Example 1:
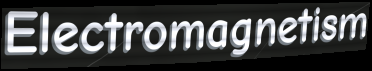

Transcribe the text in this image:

Electromagnetism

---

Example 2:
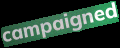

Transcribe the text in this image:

campaigned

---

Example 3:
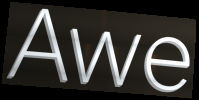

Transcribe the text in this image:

Awe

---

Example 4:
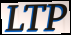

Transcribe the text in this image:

LTP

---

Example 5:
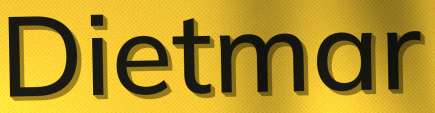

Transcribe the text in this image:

Dietmar